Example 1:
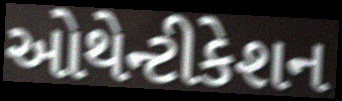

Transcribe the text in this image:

ઓથેન્ટીકેશન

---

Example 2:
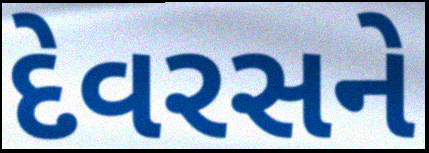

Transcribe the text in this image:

દેવરસને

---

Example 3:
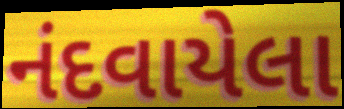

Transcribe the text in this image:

નંદવાયેલા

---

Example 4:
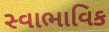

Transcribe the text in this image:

સ્વાભાવિક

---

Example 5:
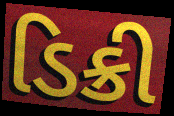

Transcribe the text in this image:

ડિક્રી